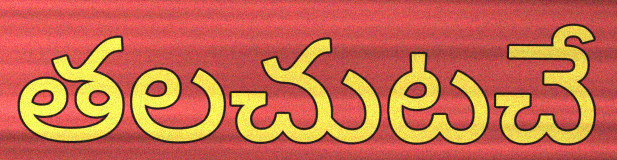
తలచుటచే